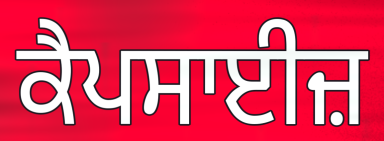
ਕੈਪਸਾਈਜ਼